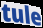
tule